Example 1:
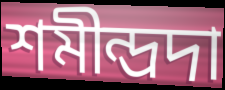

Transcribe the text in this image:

শমীন্দ্রদা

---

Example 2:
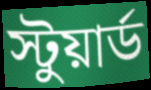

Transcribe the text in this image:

স্টুয়ার্ড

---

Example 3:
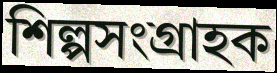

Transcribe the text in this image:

শিল্পসংগ্রাহক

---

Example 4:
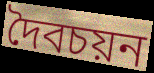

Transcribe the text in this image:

দৈবচয়ন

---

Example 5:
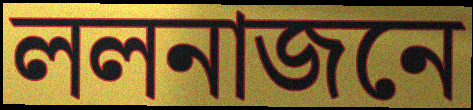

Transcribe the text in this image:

ললনাজনে